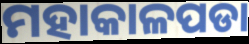
ମହାକାଳପଡା